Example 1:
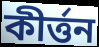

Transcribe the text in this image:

কীর্ত্তন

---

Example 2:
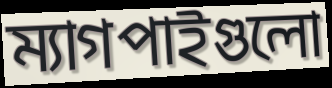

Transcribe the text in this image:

ম্যাগপাইগুলো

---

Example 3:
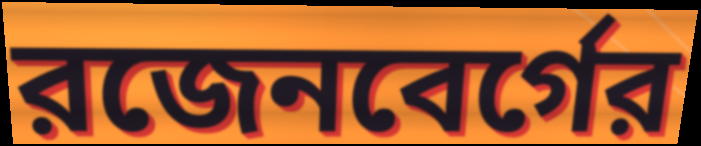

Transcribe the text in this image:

রজেনবের্গের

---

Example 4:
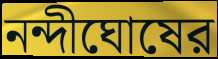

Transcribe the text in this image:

নন্দীঘোষের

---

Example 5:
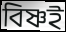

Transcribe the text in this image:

বিষ্ণই